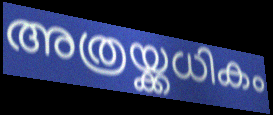
അത്രയ്ക്കധികം